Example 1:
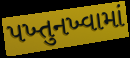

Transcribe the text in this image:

પખ્તુનખ્વામાં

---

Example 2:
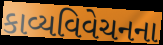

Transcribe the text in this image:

કાવ્યવિવેચનના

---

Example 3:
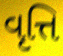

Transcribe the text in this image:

વૃત્તિ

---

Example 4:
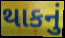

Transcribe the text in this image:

થાકનું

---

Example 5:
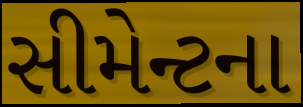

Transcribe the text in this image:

સીમેન્ટના